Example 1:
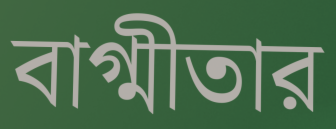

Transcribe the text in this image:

বাগ্মীতার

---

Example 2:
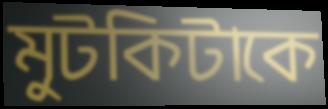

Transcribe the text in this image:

মুটকিটাকে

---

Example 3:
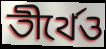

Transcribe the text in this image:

তীর্থেও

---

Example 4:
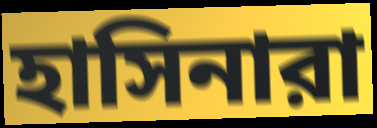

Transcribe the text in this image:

হাসিনারা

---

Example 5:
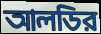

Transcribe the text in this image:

আলডির